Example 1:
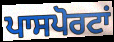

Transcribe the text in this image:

ਪਾਸਪੋਰਟਾਂ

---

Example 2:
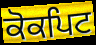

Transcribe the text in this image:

ਕੋਕਪਿਟ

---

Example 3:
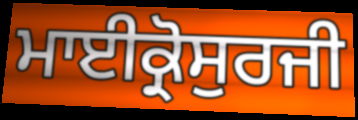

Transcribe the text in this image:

ਮਾਈਕ੍ਰੋਸੁਰਜੀ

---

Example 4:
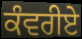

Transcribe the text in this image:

ਕੰਵਰੀਏ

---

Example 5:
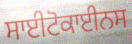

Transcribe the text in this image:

ਸਾਈਟੋਕਾਈਨਸ